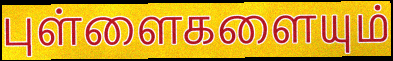
புள்ளைகளையும்